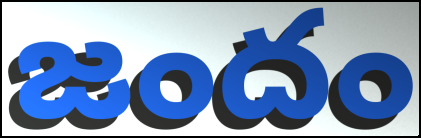
జందం